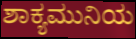
ಶಾಕ್ಯಮುನಿಯ